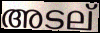
അടല്